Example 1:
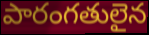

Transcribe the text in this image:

పారంగతులైన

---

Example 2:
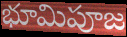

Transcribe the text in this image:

భూమిపూజ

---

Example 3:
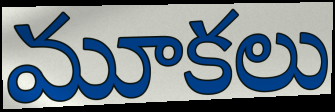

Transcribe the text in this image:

మూకలు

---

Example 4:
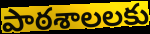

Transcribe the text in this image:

పాఠశాలలకు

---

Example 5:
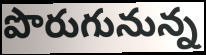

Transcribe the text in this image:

పొరుగునున్న